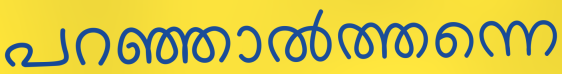
പറഞ്ഞാൽത്തന്നെ